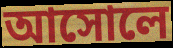
আসোলে